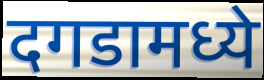
दगडामध्ये